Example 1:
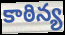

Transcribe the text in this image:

కాఠిన్య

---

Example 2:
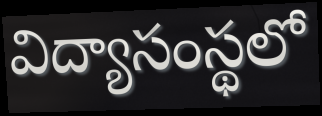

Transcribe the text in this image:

విద్యాసంస్థలో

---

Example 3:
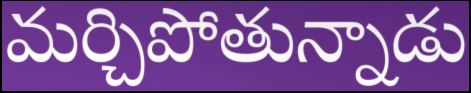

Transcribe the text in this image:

మర్చిపోతున్నాడు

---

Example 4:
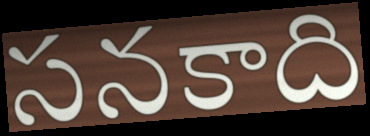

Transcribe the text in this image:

సనకాది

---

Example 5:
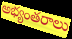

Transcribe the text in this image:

అభ్యంతరాలు